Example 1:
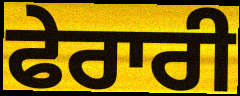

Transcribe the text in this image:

ਫੇਰਾਰੀ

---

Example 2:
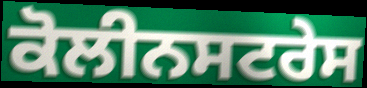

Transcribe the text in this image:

ਕੋਲੀਨਸਟਰੇਸ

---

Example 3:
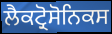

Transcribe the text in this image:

ਲੈਕਟ੍ਰੋਸੋਨਿਕਸ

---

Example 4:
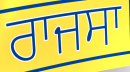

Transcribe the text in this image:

ਰਾਜਸਾ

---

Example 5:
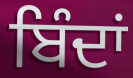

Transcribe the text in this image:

ਬਿੰਦਾਂ